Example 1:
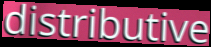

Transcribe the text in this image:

distributive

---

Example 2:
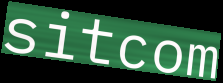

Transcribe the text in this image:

sitcom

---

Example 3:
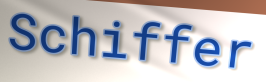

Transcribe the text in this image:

Schiffer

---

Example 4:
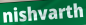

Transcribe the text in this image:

nishvarth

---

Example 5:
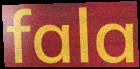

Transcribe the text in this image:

fala